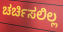
ಚರ್ಚಿಸಲಿಲ್ಲ